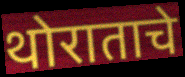
थोराताचे